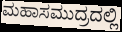
ಮಹಾಸಮುದ್ರದಲ್ಲಿ